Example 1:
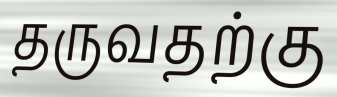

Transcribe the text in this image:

தருவதற்கு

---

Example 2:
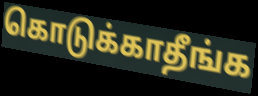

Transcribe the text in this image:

கொடுக்காதீங்க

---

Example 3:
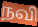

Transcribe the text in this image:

நவி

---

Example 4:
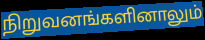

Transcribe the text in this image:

நிறுவனங்களினாலும்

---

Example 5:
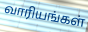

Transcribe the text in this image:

வாரியங்கள்